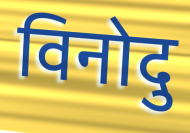
विनोदु